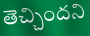
తెచ్చిందని